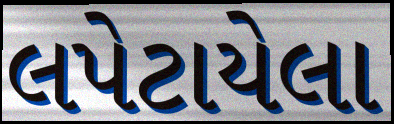
લપેટાયેલા